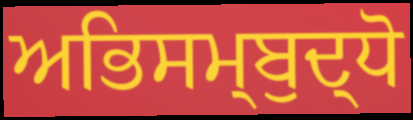
ਅਭਿਸਮ੍ਬੁਦ੍ਧੋ